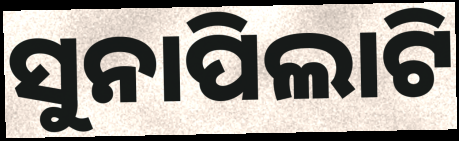
ସୁନାପିଲାଟି